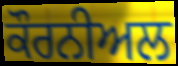
ਕੌਰਨੀਅਲ